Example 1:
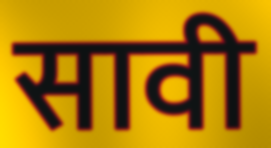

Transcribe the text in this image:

सावी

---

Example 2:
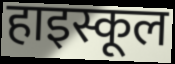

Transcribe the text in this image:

हाइस्कूल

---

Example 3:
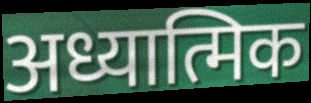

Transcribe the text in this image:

अध्यात्मिक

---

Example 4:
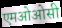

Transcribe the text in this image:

एमओओसी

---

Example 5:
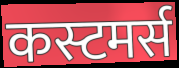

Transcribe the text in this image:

कस्‍टमर्स